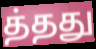
த்தது